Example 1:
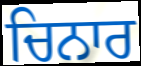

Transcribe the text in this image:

ਚਿਨਾਰ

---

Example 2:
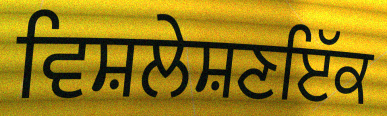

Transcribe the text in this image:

ਵਿਸ਼ਲੇਸ਼ਣਇੱਕ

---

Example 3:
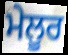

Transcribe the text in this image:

ਮੇਲੂਰ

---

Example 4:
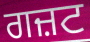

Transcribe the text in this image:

ਗਜ਼ਟ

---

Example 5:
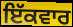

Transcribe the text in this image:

ਇੱਕਵਾਰ